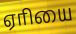
ஏரியை